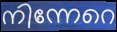
നിന്നേറെ